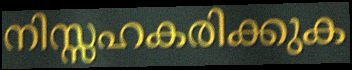
നിസ്സഹകരിക്കുക